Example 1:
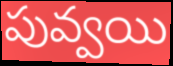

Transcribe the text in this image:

పువ్వయి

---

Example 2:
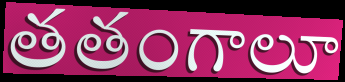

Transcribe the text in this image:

తతంగాలూ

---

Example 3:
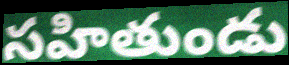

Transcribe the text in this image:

సహితుండు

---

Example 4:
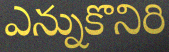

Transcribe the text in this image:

ఎన్నుకొనిరి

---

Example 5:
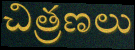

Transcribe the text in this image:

చిత్రణలు